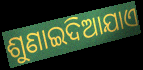
ଶୁଣାଇଦିଆଯାଏ